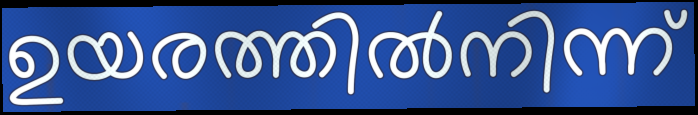
ഉയരത്തിൽനിന്ന്